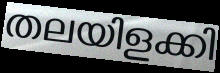
തലയിളക്കി